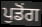
ਪੁਡੋਂਗ